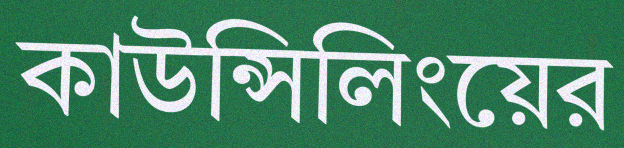
কাউন্সিলিংয়ের